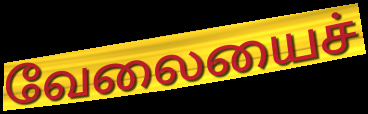
வேலையைச்